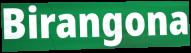
Birangona